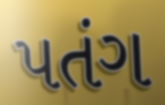
પતંગ